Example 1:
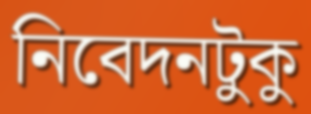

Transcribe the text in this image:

নিবেদনটুকু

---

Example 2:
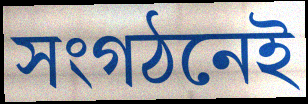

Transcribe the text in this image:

সংগঠনেই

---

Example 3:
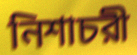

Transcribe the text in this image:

নিশাচরী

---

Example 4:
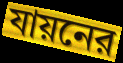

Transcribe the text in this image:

যায়নের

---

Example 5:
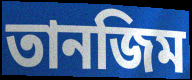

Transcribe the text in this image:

তানজিম